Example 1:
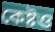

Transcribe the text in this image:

কেষ্টও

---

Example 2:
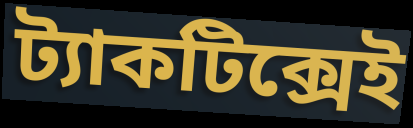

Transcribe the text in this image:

ট্যাকটিক্সেই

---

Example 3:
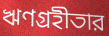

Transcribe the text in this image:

ঋণগ্রহীতার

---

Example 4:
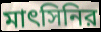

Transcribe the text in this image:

মাৎসিনির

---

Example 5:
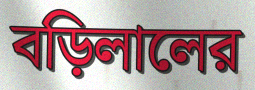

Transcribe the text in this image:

বড়িলালের